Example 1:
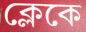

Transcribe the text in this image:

ক্লেকে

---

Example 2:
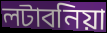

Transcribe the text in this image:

লটাবনিয়া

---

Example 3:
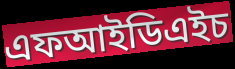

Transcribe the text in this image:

এফআইডিএইচ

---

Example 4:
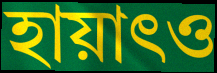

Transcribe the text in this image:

হায়াৎও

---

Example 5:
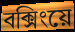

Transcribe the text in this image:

বক্সিংয়ে